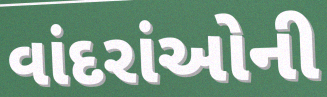
વાંદરાંઓની